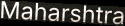
Maharshtra